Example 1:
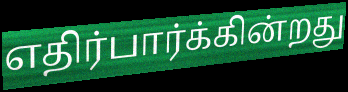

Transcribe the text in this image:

எதிர்பார்க்கின்றது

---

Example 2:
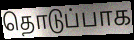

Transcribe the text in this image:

தொடுப்பாக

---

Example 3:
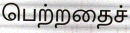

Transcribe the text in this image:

பெற்றதைச்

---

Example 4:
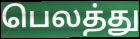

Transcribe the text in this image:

பெலத்து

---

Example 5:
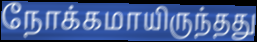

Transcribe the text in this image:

நோக்கமாயிருந்தது